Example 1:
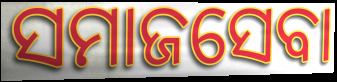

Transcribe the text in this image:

ସମାଜସେବା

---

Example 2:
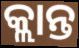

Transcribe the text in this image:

କ୍ଲାନ୍ତ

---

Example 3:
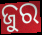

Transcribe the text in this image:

ଜୁର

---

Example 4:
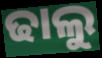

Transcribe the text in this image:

ଢାଲୁ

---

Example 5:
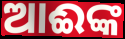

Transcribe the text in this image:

ଆଈଙ୍କ